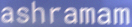
ashramam